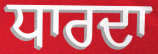
ਧਾਰਦਾ